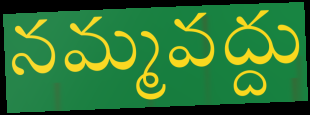
నమ్మవద్దు